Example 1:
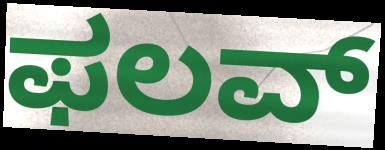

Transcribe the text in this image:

ಫಲವ್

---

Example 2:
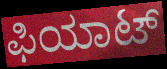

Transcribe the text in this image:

ಫಿಯಾಟ್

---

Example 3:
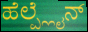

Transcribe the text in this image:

ಹೆಲ್ಪ್ಲೈನ್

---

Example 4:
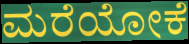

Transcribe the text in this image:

ಮರೆಯೋಕೆ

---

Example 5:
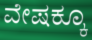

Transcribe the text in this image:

ವೇಷಕ್ಕೂ